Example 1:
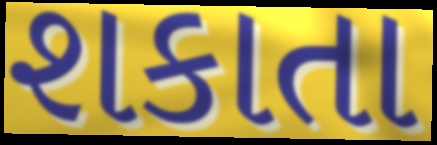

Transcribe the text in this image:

શકાતા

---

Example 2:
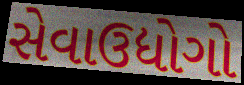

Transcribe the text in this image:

સેવાઉદ્યોગો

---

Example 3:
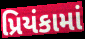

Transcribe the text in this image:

પ્રિયંકામાં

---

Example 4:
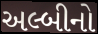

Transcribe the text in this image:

અલ્બીનો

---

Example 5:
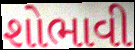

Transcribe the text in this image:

શોભાવી